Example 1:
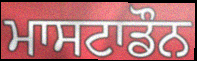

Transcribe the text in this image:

ਮਾਸਟਾਡੌਨ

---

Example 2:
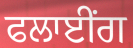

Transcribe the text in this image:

ਫਲਾਈਂਗ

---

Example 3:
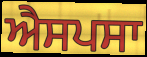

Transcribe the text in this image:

ਐਸਪਸਾ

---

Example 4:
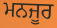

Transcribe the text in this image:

ਮਨਜੂਰ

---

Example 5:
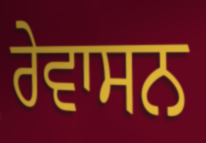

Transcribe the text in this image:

ਰੇਵਾਸਨ